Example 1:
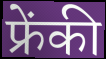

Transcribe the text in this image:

फ्रेंकी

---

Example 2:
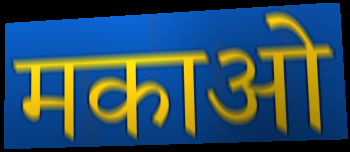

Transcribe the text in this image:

मकाओ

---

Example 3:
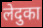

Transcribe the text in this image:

लेदुका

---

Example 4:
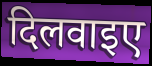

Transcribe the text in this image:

दिलवाइए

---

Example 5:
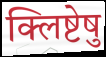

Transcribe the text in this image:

क्लिष्टेषु